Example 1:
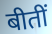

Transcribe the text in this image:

बीतीं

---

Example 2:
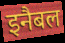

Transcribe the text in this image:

इनैबल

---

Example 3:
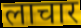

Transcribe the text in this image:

लाचार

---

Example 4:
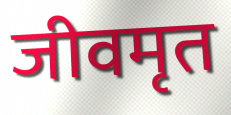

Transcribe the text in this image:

जीवमृत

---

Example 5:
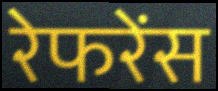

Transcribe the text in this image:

रेफरेंस